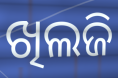
ଖିଲଜି